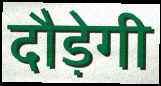
दौड़ेगी